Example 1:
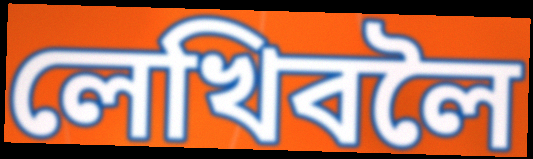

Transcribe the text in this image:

লেখিবলৈ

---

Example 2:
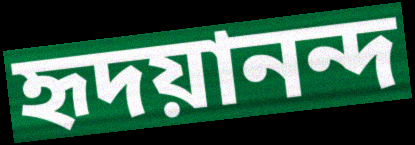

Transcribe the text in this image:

হৃদয়ানন্দ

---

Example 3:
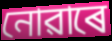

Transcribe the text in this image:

নোৱাৰে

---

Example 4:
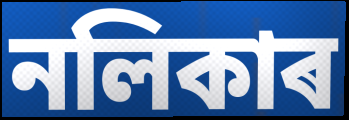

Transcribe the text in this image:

নলিকাৰ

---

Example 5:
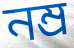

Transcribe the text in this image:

নম্ৰ